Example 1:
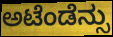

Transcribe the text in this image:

ಅಟೆಂಡೆನ್ಸು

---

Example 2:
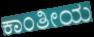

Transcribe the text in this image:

ಕಾಂತೀಯ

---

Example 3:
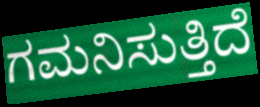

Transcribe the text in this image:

ಗಮನಿಸುತ್ತಿದೆ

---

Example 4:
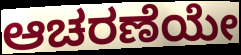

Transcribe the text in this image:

ಆಚರಣೆಯೇ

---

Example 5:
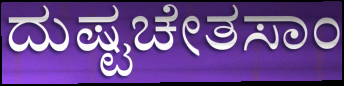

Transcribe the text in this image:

ದುಷ್ಟಚೇತಸಾಂ